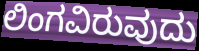
ಲಿಂಗವಿರುವುದು